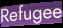
Refugee